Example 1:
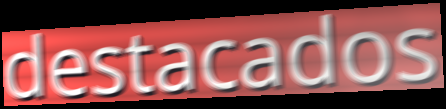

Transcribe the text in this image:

destacados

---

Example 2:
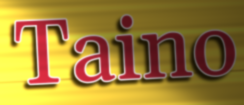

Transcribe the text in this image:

Taino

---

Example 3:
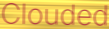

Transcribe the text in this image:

Clouded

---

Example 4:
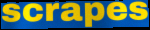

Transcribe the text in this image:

scrapes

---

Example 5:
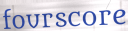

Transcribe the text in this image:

fourscore